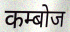
कम्बोज